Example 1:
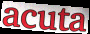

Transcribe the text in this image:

acuta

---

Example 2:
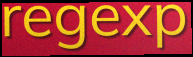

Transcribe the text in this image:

regexp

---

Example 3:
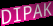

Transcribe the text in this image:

DIPAK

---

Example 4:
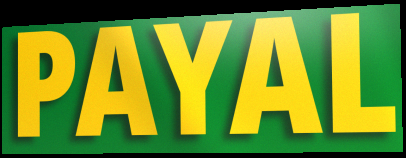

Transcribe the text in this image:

PAYAL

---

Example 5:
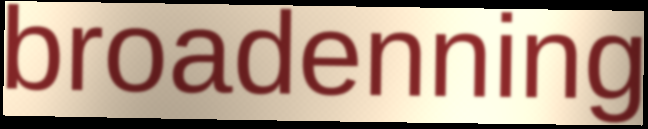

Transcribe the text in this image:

broadenning